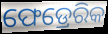
ଫେଡ୍ରେରିକ